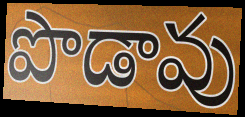
పొడావు